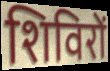
शिविरों